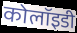
कोलॉइडी